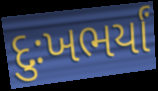
દુઃખભર્યાં